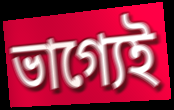
ভাগ্যেই